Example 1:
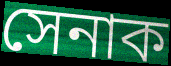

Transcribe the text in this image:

সেনাক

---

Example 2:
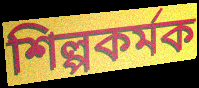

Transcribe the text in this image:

শিল্পকৰ্মক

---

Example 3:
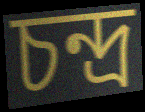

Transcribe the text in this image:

চন্দ্ৰ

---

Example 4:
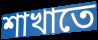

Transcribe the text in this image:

শাখাতে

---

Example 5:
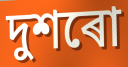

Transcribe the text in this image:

দুশৰো